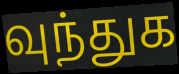
வுந்துக